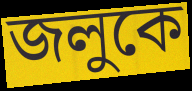
জলুকে